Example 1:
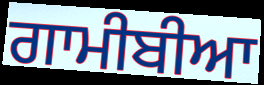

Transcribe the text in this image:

ਗਾਮੀਬੀਆ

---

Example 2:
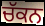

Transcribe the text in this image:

ਚੱਕਨ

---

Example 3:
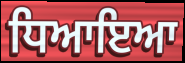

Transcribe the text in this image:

ਧਿਆਇਆ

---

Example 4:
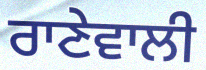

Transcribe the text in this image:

ਰਾਣੇਵਾਲੀ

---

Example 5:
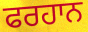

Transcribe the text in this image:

ਫਰਹਾਨ